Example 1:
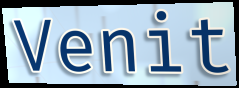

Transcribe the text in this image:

Venit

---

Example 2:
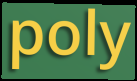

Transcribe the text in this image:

poly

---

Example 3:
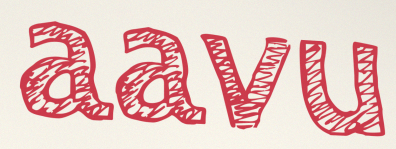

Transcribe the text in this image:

aavu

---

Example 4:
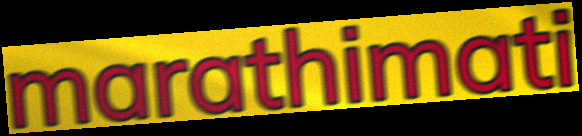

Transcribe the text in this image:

marathimati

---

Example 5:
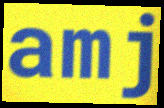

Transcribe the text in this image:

amj